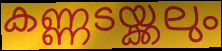
കണ്ണടയ്ക്കലും